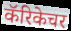
कॅरिकेचर